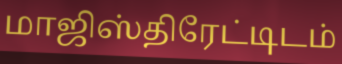
மாஜிஸ்திரேட்டிடம்